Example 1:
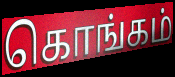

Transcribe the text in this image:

கொங்கம்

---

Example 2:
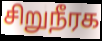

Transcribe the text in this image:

சிறுநீரக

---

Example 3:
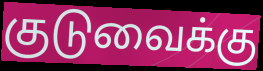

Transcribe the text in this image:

குடுவைக்கு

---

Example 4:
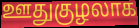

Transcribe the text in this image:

ஊதுகுழலாக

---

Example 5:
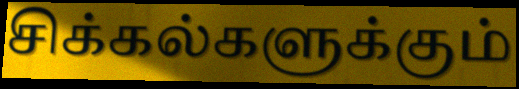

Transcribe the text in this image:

சிக்கல்களுக்கும்